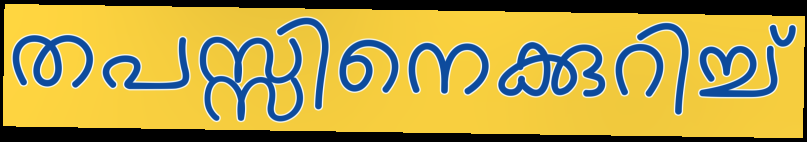
തപസ്സിനെക്കുറിച്ച്